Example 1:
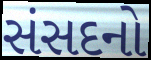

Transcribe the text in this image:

સંસદનો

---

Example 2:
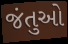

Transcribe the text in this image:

જંતુઓ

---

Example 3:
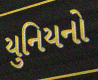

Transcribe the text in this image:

યુનિયનો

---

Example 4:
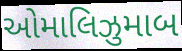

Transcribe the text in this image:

ઓમાલિઝુમાબ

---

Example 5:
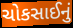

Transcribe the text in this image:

ચોકસાઈનું